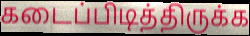
கடைப்பிடித்திருக்க